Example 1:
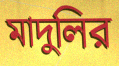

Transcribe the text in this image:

মাদুলির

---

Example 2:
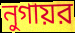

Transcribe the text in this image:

নুগায়র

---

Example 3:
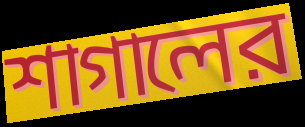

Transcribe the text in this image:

শাগালের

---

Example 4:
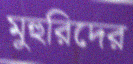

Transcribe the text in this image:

মুহুরিদের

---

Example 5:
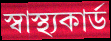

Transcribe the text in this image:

স্বাস্থ্যকার্ড